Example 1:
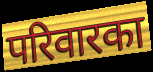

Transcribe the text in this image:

परिवारका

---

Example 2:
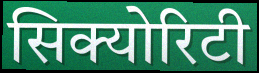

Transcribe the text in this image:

सिक्‍योरिटी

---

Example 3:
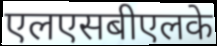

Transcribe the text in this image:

एलएसबीएलके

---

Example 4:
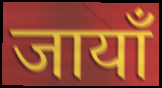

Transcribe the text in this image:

जायाँ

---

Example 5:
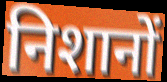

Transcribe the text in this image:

निशानों